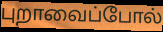
புறாவைப்போல்